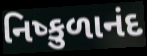
નિષ્કુળાનંદ